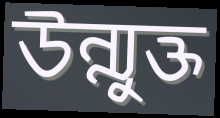
উন্মুক্ত